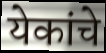
येकांचे